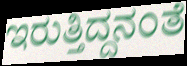
ಇರುತ್ತಿದ್ದನಂತೆ